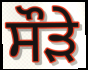
ਸੌੜੇ